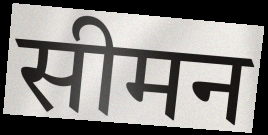
सीमन